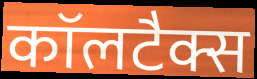
कॉलटैक्स